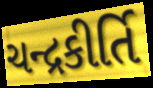
ચન્દ્રકીર્તિ